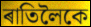
ৰাতিলৈকে